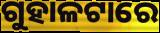
ଗୁହାଳଟାରେ